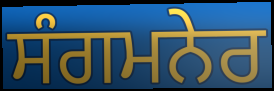
ਸੰਗਮਨੇਰ